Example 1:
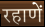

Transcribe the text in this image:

रहाणें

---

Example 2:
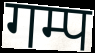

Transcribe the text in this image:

गम्प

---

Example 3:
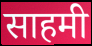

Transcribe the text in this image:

साहमी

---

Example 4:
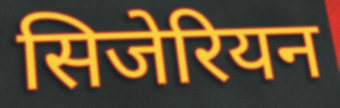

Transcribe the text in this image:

सिजेरियन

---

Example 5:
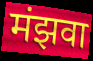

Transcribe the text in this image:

मंझवा